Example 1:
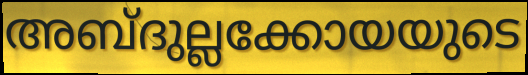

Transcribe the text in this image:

അബ്ദുല്ലക്കോയയുടെ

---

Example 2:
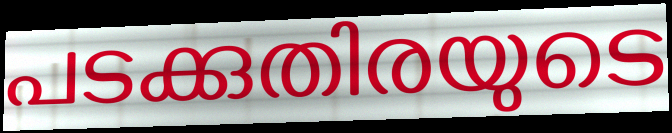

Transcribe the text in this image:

പടക്കുതിരയുടെ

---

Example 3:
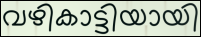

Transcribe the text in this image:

വഴികാട്ടിയായി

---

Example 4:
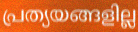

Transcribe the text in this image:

പ്രത്യയങ്ങളില്ല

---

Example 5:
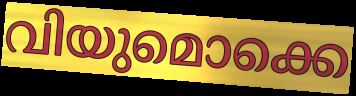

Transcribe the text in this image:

വിയുമൊക്കെ